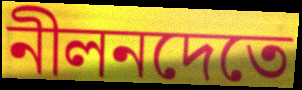
নীলনদেতে